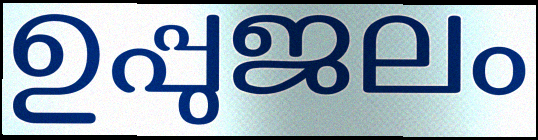
ഉപ്പുജലം